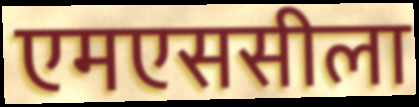
एमएससीला